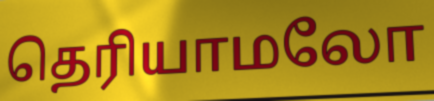
தெரியாமலோ